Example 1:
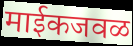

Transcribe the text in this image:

माईकजवळ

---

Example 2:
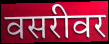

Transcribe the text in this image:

वसरीवर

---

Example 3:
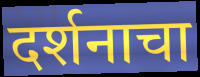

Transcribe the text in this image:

दर्शनाचा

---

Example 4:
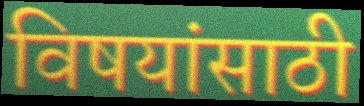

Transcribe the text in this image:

विषयांसाठी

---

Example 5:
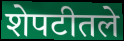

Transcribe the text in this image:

शेपटीतले